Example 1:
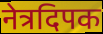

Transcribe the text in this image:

नेत्रदिपक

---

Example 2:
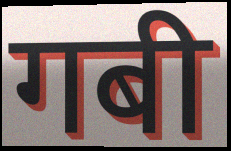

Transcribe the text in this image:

गबी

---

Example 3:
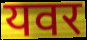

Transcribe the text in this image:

यवर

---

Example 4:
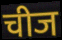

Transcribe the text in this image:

चीज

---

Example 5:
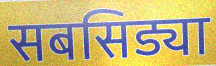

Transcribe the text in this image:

सबसिड्या